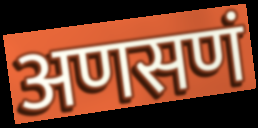
अणसणं